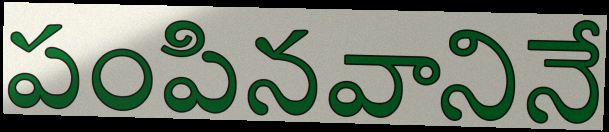
పంపినవానినే